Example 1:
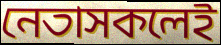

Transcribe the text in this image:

নেতাসকলেই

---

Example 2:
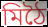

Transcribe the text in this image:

মিঠৈ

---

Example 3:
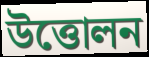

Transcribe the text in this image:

উত্তোলন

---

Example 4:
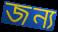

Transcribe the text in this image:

জন্য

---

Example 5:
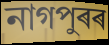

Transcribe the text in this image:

নাগপুৰৰ